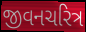
જીવનચરિત્ર